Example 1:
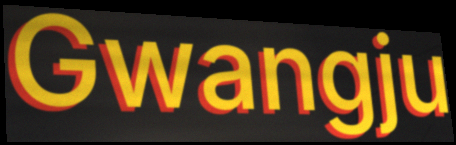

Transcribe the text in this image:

Gwangju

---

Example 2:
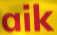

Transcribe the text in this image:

aik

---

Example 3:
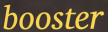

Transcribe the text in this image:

booster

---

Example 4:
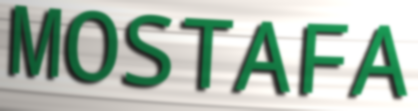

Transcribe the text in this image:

MOSTAFA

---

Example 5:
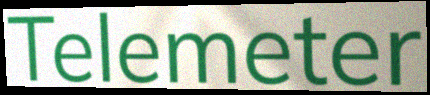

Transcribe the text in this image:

Telemeter